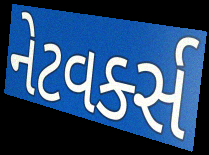
નેટવર્ક્સ